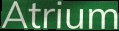
Atrium